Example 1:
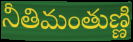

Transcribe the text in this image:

నీతిమంతుణ్ణి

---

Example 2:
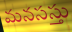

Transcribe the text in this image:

మనసస్తు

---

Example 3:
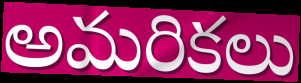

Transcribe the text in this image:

అమరికలు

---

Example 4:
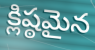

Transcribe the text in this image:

క్లిష్ఠమైన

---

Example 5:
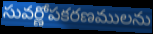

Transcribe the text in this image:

సువర్ణోపకరణములను